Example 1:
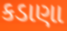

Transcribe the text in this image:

કડાણા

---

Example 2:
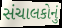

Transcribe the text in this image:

સંચાલકોનું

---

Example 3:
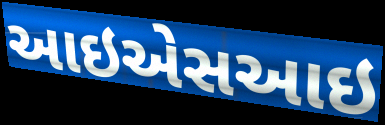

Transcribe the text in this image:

આઇએસઆઇ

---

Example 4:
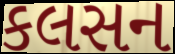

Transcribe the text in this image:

કલસન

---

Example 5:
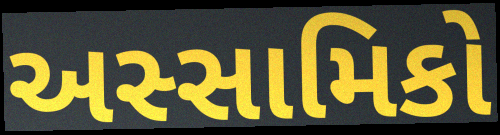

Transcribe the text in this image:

અસ્સામિકો